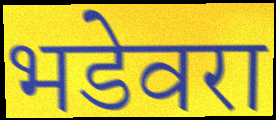
भडेवरा